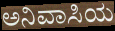
ಅನಿವಾಸಿಯ